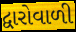
દ્વારોવાળી